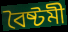
বৈষ্টমী